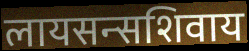
लायसन्सशिवाय